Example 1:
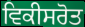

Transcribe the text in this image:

ਵਿਕੀਸਰੋਤ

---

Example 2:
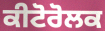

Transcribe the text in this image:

ਕੀਟੋਰੋਲਕ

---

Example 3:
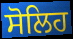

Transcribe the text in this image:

ਸੋਲਿਹ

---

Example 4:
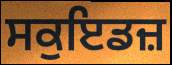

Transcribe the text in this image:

ਸਕੁਇਡਜ਼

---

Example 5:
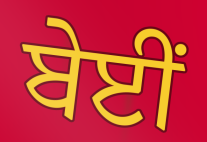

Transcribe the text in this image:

ਬੇਈਂ